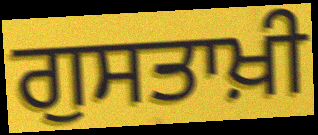
ਗੁਸਤਾਖ਼ੀ